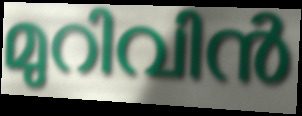
മുറിവിൻ